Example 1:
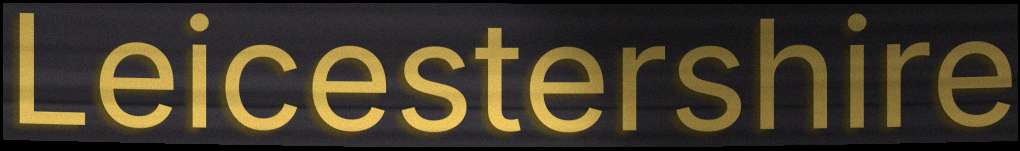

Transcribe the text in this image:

Leicestershire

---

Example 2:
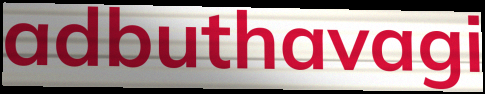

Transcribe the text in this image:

adbuthavagi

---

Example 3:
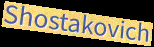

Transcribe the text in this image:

Shostakovich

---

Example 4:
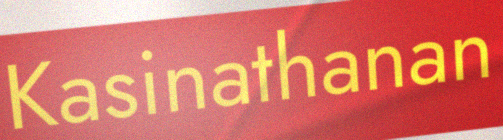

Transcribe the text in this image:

Kasinathanan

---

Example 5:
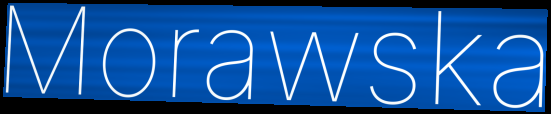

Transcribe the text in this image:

Morawska